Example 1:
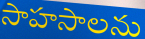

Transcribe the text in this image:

సాహసాలను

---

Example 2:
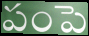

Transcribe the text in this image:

పంపె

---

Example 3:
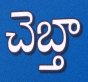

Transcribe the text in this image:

చెబ్తా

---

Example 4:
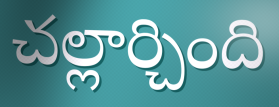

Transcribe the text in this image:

చల్లార్చింది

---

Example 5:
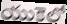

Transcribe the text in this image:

యుకెలో